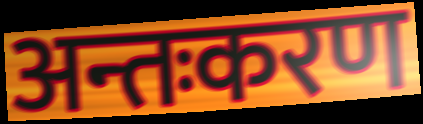
अन्तःकरण